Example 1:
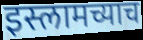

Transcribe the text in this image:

इस्लामच्याच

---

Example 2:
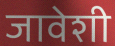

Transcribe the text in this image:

जावेशी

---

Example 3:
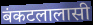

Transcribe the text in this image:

बंकटलालासी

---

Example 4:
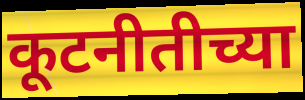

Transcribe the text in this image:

कूटनीतीच्या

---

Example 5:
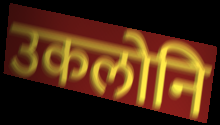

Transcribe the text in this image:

उकलोनि